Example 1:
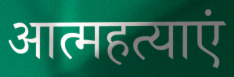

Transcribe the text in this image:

आत्महत्याएं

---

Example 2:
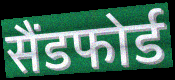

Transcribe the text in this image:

सैंडफोर्ड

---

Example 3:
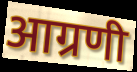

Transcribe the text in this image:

आग्रणी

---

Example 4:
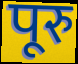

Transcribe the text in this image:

पूरु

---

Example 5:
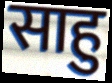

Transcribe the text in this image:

साहु